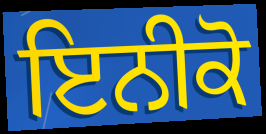
ਇਨੀਕੋ